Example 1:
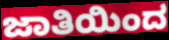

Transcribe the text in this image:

ಜಾತಿಯಿಂದ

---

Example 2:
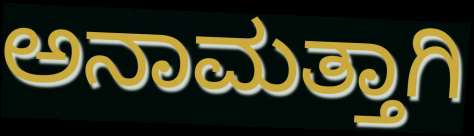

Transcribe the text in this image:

ಅನಾಮತ್ತಾಗಿ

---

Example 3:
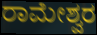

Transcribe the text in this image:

ರಾಮೇಶ್ವರ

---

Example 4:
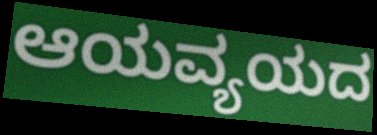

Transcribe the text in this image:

ಆಯವ್ಯಯದ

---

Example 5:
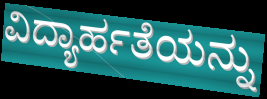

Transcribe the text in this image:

ವಿದ್ಯಾರ್ಹತೆಯನ್ನು